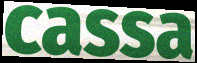
cassa